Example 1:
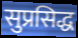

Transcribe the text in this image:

सुप्रसिद्ध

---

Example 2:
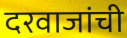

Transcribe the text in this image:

दरवाजांची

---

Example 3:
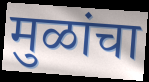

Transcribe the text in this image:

मुळांचा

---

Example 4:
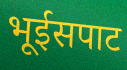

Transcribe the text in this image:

भूईसपाट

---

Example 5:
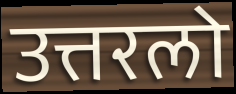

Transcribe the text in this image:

उत्तरलो